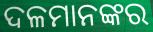
ଦଳମାନଙ୍କର